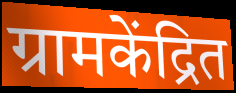
ग्रामकेंद्रित